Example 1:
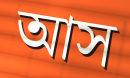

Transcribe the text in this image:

আস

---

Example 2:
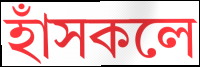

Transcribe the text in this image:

হাঁসকলে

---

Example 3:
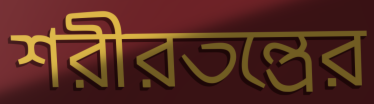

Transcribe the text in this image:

শরীরতন্ত্রের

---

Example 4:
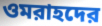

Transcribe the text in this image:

ওমরাহদের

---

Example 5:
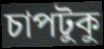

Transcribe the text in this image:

চাপটুকু